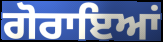
ਗੋਰਾਇਆਂ